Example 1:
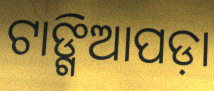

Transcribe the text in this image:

ଟାଙ୍ଗିଆପଡ଼ା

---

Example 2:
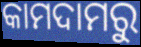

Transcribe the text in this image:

କାମଦାମରୁ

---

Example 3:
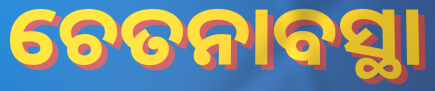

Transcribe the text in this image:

ଚେତନାବସ୍ଥା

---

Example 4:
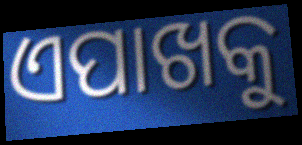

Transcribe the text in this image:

ଏପାଖକୁ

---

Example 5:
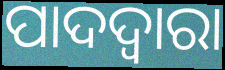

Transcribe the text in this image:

ପାଦଦ୍ଵାରା